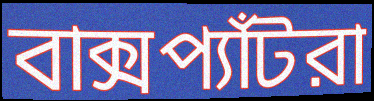
বাক্সপ্যাঁটরা